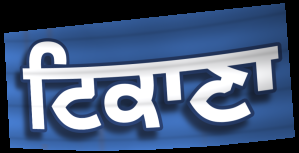
ਟਿਕਾਣਾ